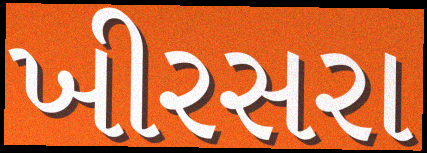
ખીરસરા